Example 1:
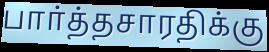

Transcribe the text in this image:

பார்த்தசாரதிக்கு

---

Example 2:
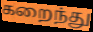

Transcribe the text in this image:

கறைந்து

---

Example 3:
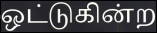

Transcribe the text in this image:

ஒட்டுகின்ற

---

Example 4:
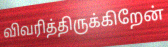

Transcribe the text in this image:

விவரித்திருக்கிறேன்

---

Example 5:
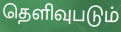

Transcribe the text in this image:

தெளிவுபடும்